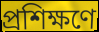
প্রশিক্ষণে